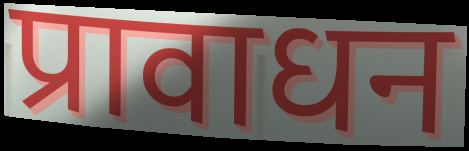
प्रावाधन